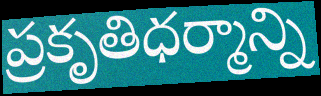
ప్రకృతిధర్మాన్ని